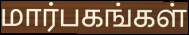
மார்பகங்கள்